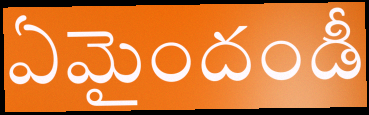
ఏమైందండీ